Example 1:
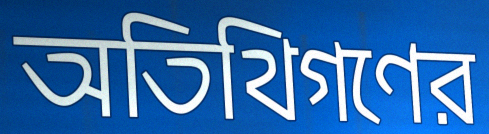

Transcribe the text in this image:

অতিথিগণের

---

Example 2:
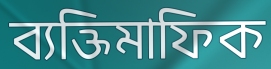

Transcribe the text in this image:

ব্যক্তিমাফিক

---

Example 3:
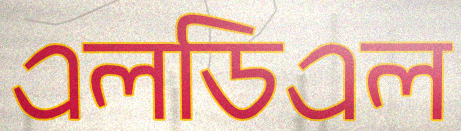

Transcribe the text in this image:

এলডিএল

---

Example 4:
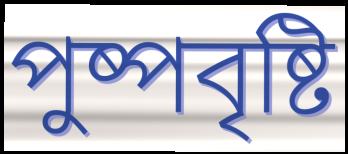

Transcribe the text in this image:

পুষ্পবৃষ্টি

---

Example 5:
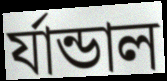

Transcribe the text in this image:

র্যান্ডাল